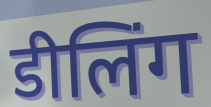
डीलिंग